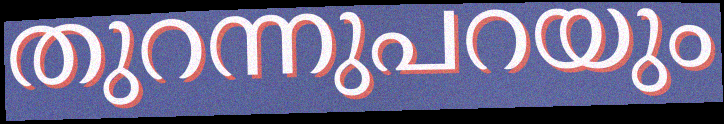
തുറന്നുപറയും